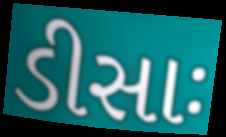
ડીસાઃ